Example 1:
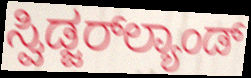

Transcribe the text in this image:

ಸ್ವಿಡ್ಜರ್‌ಲ್ಯಾಂಡ್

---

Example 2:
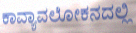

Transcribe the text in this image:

ಕಾವ್ಯಾವಲೋಕನದಲ್ಲಿ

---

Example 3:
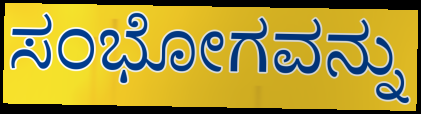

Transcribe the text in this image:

ಸಂಭೋಗವನ್ನು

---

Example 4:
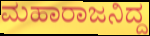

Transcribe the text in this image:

ಮಹಾರಾಜನಿದ್ದ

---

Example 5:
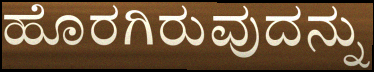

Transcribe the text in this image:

ಹೊರಗಿರುವುದನ್ನು